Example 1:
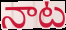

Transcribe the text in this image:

నాట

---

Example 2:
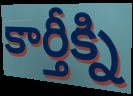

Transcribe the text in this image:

కార్తీక్ని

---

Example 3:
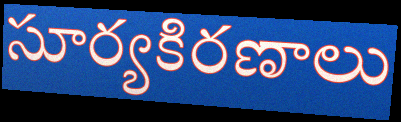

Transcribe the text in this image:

సూర్యకిరణాలు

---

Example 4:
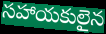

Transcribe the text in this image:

సహాయకులైన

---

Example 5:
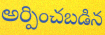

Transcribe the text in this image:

అర్పించబడిన